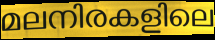
മലനിരകളിലെ